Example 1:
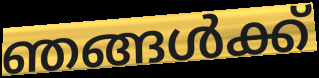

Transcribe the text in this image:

ഞങ്ങൾക്ക്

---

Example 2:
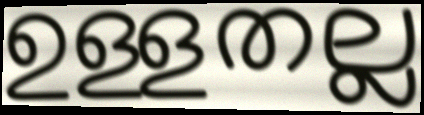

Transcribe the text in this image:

ഉള്ളതല്ല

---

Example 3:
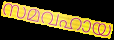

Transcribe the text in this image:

സമവഹായ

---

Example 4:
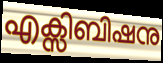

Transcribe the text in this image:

എക്സിബിഷനു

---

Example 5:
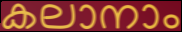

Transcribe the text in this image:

കലാനാം